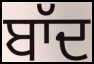
ਬਾੱਦ